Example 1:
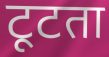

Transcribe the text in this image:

टूटता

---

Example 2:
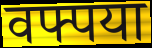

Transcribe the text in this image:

वफ्पया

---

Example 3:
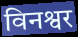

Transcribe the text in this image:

विनश्वर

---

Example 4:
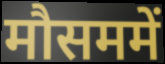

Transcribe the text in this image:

मौसममें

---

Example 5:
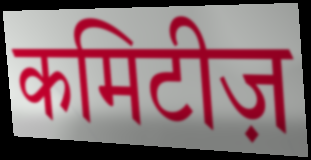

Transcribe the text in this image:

कमिटीज़